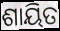
ଶାୟିତ